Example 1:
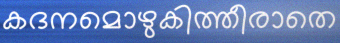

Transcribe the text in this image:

കദനമൊഴുകിത്തീരാതെ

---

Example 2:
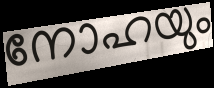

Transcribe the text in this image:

നോഹയും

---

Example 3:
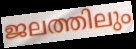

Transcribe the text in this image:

ജലത്തിലും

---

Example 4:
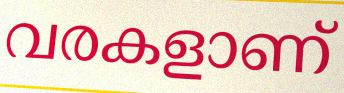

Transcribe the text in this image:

വരകളാണ്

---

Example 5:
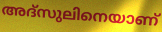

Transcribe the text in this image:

അദ്സുലിനെയാണ്